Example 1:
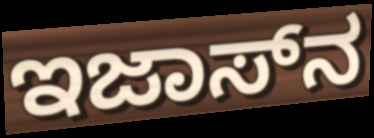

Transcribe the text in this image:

ಇಜಾಸ್‌ನ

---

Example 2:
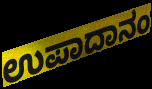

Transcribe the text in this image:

ಉಪಾದಾನಂ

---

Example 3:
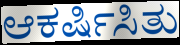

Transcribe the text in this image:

ಆಕರ್ಷಿಸಿತು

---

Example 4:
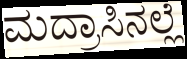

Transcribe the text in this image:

ಮದ್ರಾಸಿನಲ್ಲೆ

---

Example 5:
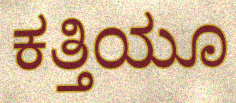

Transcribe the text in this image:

ಕತ್ತಿಯೂ